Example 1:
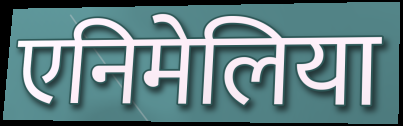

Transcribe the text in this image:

एनिमेलिया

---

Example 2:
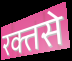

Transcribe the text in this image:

रक्तसे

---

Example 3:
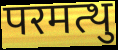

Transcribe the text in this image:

परमत्थु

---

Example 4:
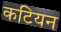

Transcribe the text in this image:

कटियन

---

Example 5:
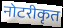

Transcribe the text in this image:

नोटरीकृत